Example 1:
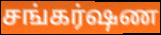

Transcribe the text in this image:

சங்கர்ஷண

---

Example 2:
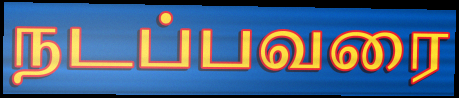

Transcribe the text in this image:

நடப்பவரை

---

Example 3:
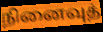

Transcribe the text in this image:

நினைவுத்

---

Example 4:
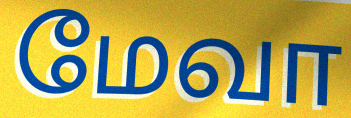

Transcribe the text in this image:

மேவா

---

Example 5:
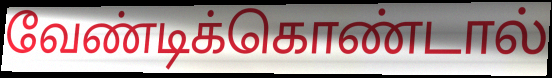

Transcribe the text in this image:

வேண்டிக்கொண்டால்